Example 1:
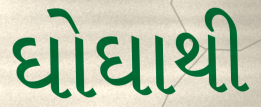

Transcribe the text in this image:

ઘોઘાથી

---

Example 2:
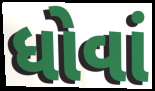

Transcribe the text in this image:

ધોવાં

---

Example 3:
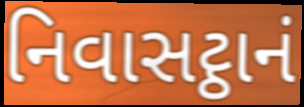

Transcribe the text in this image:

નિવાસટ્ઠાનં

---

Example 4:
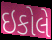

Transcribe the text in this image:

ઇકોલે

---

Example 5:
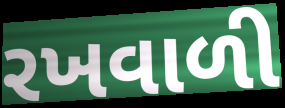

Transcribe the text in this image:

રખવાળી